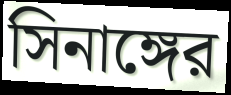
সিনাঙ্গের